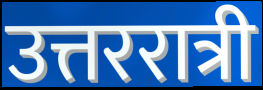
उत्तररात्री